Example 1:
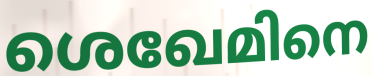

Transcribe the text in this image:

ശെഖേമിനെ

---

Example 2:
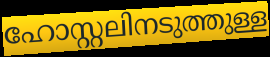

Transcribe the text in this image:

ഹോസ്റ്റലിനടുത്തുള്ള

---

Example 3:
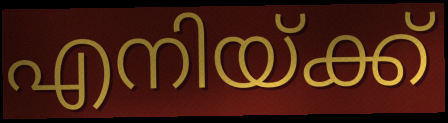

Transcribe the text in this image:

എനിയ്ക്ക്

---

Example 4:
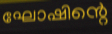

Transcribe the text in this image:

ഘോഷിന്റെ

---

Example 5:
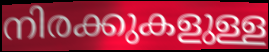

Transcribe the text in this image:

നിരക്കുകളുള്ള